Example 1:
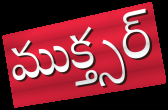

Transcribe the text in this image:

ముక్త్సర్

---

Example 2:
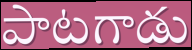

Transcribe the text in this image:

పాటగాడు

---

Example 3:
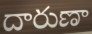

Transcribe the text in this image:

దారుణా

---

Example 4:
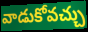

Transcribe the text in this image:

వాడుకోవచ్చు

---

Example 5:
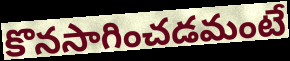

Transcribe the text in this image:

కొనసాగించడమంటే